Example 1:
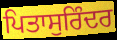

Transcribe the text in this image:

ਪਿਤਾਸੁਰਿੰਦਰ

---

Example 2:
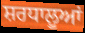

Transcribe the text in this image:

ਸ਼ਰਧਾਲੂਆਂ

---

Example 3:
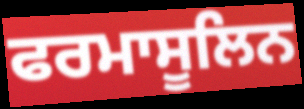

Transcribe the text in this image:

ਫਰਮਾਸੂਲਿਨ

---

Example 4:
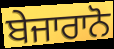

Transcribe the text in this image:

ਬੇਜਾਰਾਨੋ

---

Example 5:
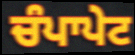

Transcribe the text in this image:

ਚੰਪਾਪੇਟ